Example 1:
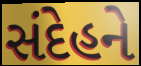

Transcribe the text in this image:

સંદેહને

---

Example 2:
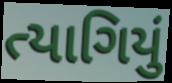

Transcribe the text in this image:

ત્યાગિયું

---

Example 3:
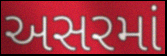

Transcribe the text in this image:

અસરમાં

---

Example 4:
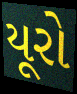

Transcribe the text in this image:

યૂરો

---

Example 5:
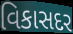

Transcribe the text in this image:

વિકાસદર